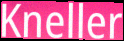
Kneller